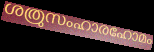
ശത്രുസംഹാരഹോമം